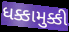
ધક્કામુક્કી